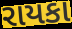
રાયકા